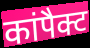
कांपैक्ट